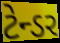
ટેન્ડર